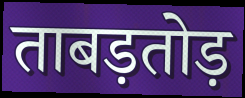
ताबड़तोड़